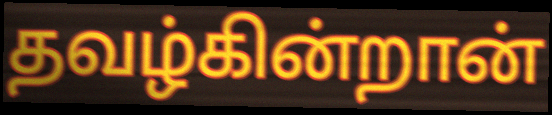
தவழ்கின்றான்